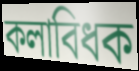
কলাবিধক